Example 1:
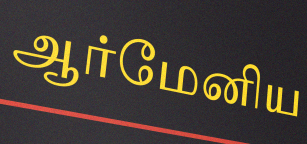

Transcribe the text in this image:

ஆர்மேனிய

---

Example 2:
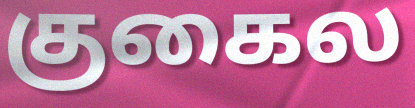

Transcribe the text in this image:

குகைல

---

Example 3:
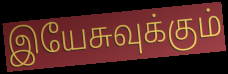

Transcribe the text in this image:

இயேசுவுக்கும்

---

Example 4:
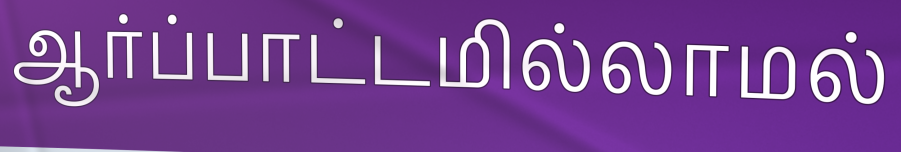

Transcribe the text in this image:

ஆர்ப்பாட்டமில்லாமல்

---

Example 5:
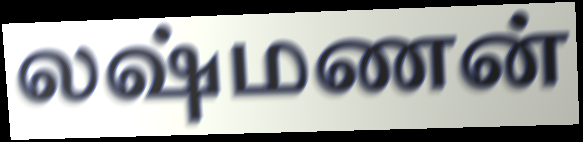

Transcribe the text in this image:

லஷ்மணன்